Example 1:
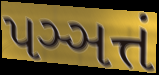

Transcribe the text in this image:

પઞ્ઞત્તં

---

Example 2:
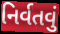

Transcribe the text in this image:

નિર્વતવું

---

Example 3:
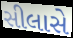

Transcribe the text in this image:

સીલાસે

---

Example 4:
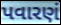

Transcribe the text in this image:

પવારણં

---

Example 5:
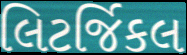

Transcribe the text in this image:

લિટર્જિકલ